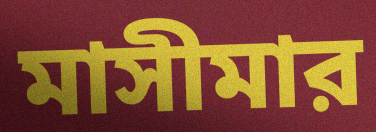
মাসীমার